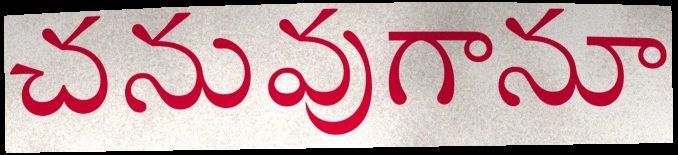
చనువుగానూ